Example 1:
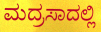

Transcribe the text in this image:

ಮದ್ರಸಾದಲ್ಲಿ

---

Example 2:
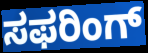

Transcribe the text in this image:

ಸಫರಿಂಗ್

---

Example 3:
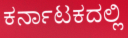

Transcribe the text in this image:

ಕರ್ನಾಟಕದಲ್ಲಿ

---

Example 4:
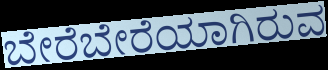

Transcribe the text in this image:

ಬೇರೆಬೇರೆಯಾಗಿರುವ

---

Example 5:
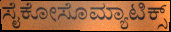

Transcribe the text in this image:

ಸೈಕೋಸೊಮ್ಯಾಟಿಕ್ಸ್